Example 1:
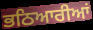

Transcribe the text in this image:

ਭਠਿਆਰੀਆਂ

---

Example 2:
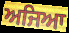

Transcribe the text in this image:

ਅਜਿਆ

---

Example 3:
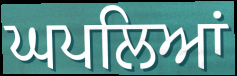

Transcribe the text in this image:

ਘਪਲਿਆਂ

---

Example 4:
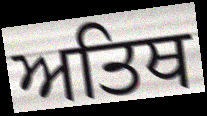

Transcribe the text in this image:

ਅਤਿਥ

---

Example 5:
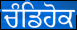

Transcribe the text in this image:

ਚੰਡਿਹੋਕ